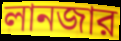
লানজার